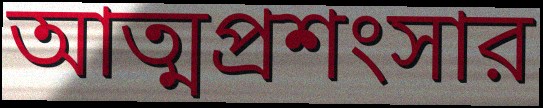
আত্মপ্রশংসার